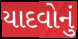
યાદવોનું